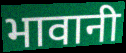
भावानी